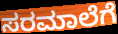
ಸರಮಾಲೆಗೆ